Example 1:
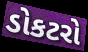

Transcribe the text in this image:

ડોકટરો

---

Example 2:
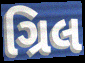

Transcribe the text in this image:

ગ્રિલ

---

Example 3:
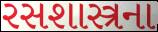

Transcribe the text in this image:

રસશાસ્ત્રના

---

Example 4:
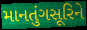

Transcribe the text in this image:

માનતુંગસૂરિને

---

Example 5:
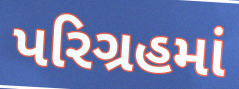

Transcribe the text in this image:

પરિગ્રહમાં